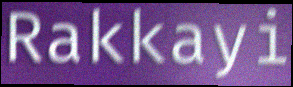
Rakkayi